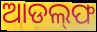
ଆଡଲ୍‌ଫ